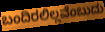
ಬಂದಿರಲಿಲ್ಲವೆಂಬುದು